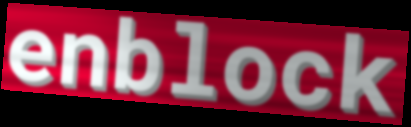
enblock